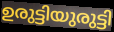
ഉരുട്ടിയുരുട്ടി